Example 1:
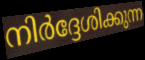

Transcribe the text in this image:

നിർദ്ദേശിക്കുന്ന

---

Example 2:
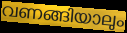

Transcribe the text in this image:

വണങ്ങിയാലും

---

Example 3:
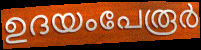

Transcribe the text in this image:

ഉദയംപേരൂർ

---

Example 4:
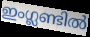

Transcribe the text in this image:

ഇംഗ്ലണ്ടിൽ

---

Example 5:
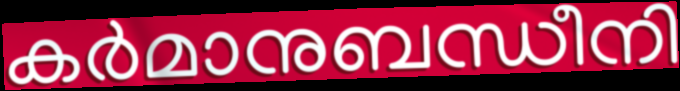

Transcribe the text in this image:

കർമാനുബന്ധീനി